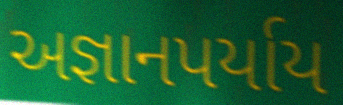
અજ્ઞાનપર્યાય